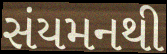
સંયમનથી